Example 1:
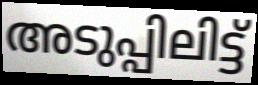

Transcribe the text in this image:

അടുപ്പിലിട്ട്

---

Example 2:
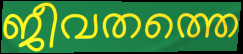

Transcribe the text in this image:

ജീവതത്തെ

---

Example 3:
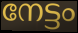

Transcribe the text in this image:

നേട്ടം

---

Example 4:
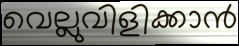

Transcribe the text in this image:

വെല്ലുവിളിക്കാൻ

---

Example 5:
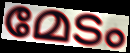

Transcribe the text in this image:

മേടം